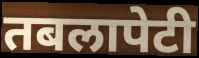
तबलापेटी